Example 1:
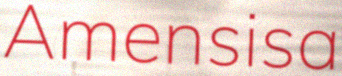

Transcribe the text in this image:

Amensisa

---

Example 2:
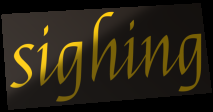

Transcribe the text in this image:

sighing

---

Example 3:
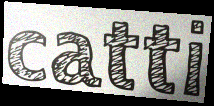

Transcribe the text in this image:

catti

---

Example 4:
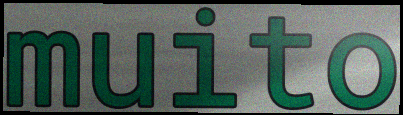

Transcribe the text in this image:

muito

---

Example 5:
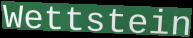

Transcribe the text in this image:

Wettstein